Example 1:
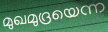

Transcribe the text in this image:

മുഖമുദ്രയെന്ന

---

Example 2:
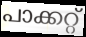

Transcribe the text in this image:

പാക്കറ്റ്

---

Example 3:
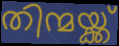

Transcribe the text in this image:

തിന്മയ്ക്ക്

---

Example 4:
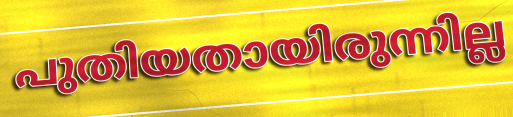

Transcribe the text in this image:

പുതിയതായിരുന്നില്ല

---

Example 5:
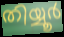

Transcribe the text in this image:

തിയ്യൂർ